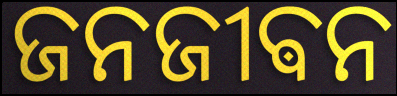
ଜନଜୀଵନ